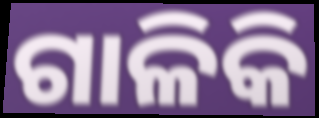
ଗାଳିକି